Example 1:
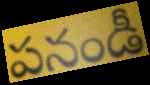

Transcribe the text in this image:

పనండీ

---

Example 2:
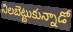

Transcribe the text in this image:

నిలబెట్టుకున్నాడో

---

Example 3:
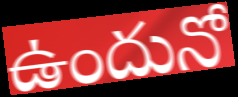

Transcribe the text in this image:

ఉందునో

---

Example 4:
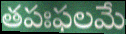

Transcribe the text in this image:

తపఃఫలమే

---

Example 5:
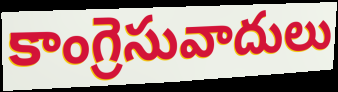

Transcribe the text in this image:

కాంగ్రెసువాదులు